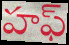
హఫ్